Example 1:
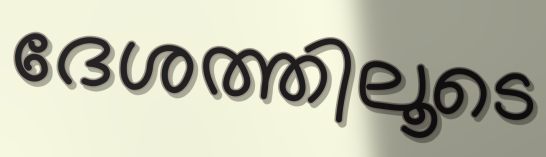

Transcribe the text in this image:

ദേശത്തിലൂടെ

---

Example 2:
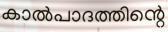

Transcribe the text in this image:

കാൽപാദത്തിന്റെ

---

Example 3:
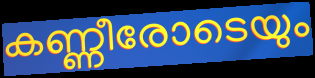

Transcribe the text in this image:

കണ്ണീരോടെയും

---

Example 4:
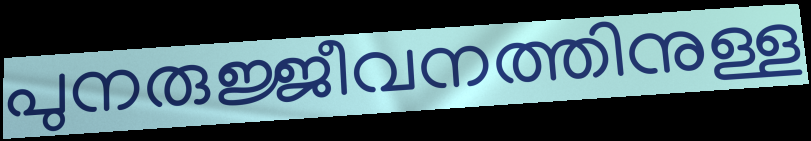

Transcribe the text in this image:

പുനരുജ്ജീവനത്തിനുള്ള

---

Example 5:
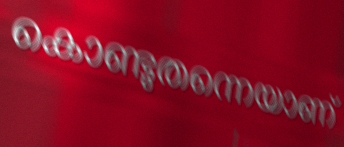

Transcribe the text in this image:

കൊണ്ടുതന്നെയാണ്